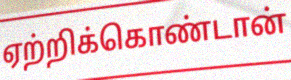
ஏற்றிக்கொண்டான்